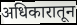
अधिकारातून